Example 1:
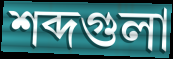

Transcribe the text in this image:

শব্দগুলা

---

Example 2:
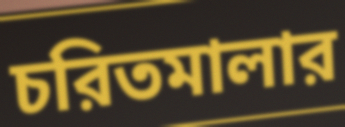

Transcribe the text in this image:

চরিতমালার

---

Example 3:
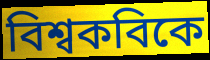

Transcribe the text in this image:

বিশ্বকবিকে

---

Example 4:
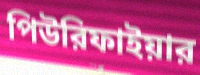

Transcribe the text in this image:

পিউরিফাইয়ার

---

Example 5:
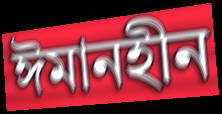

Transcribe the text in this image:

ঈমানহীন